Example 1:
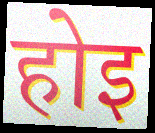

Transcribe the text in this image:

होइ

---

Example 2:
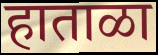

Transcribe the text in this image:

हाताळा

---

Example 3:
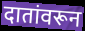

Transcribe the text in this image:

दातांवरून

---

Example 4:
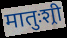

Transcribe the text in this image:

मातुःश्री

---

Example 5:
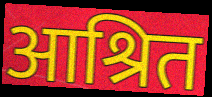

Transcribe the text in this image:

आश्रित